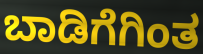
ಬಾಡಿಗೆಗಿಂತ